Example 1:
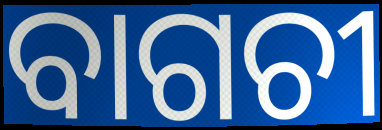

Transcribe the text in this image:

ବାଗଚୀ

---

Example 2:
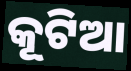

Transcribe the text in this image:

କୂଟିଆ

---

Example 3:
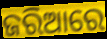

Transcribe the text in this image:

ଜରିଆରେ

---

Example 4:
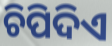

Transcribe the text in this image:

ଚିପିଦିଏ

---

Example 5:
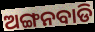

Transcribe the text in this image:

ଅଙ୍ଗନବାଡି